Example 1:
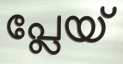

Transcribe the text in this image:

പ്ലേയ്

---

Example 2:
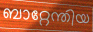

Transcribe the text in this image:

ബാറ്റേന്തിയ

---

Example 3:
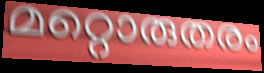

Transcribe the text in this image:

മറ്റൊരുതരം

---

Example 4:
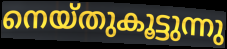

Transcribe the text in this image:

നെയ്തുകൂട്ടുന്നു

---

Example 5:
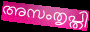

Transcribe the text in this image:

അസംതൃപ്തി